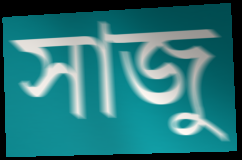
সাজু